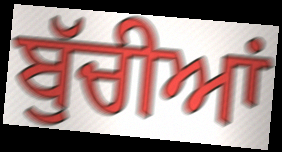
ਬੁੱਚੀਆਂ